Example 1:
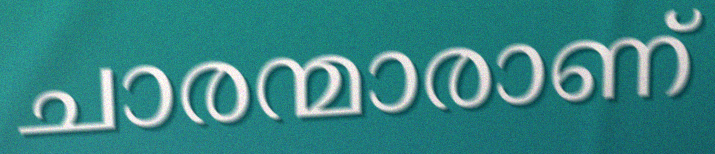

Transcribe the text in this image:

ചാരന്മാരാണ്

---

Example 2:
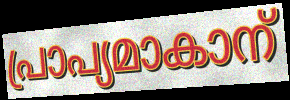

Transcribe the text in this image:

പ്രാപ്യമാകാന്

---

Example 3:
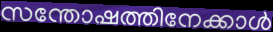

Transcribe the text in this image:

സന്തോഷത്തിനേക്കാൾ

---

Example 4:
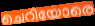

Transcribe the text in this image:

ചെറിയോരെ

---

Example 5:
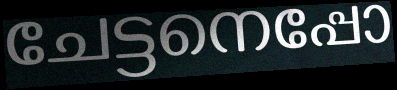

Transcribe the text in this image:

ചേട്ടനെപ്പോ